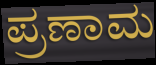
ಪ್ರಣಾಮ